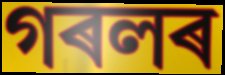
গৰলৰ